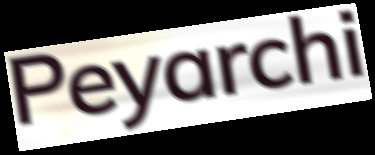
Peyarchi